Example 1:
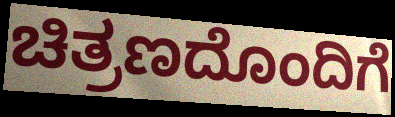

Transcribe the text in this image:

ಚಿತ್ರಣದೊಂದಿಗೆ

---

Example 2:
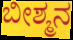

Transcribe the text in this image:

ಬೀಶ್ಮನ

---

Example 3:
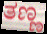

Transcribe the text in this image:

ತಣ್ಣ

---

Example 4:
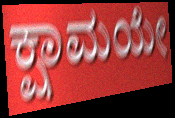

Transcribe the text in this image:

ಕ್ಷಾಮಯೇ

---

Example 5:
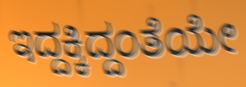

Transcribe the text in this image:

ಇದ್ದಕ್ಕಿದ್ದಂತೆಯೇ